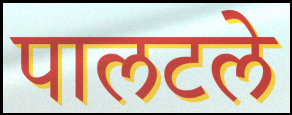
पालटले